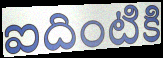
ఐదింటికి